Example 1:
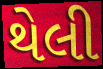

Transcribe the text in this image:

થેલી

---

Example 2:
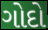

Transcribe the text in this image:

ગોદો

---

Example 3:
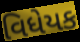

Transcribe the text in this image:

વિધેયક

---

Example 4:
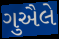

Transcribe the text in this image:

ગુઐલે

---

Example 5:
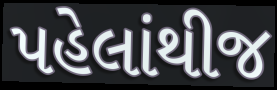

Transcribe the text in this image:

પહેલાંથીજ